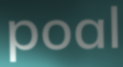
poal